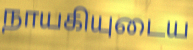
நாயகியுடைய